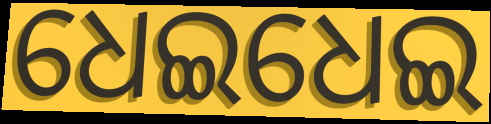
ଧେଇଧେଇ